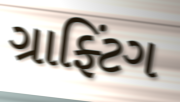
ગ્રાફ્ટિંગ